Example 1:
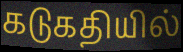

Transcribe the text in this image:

கடுகதியில்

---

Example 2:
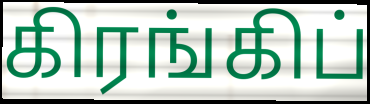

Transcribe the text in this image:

கிரங்கிப்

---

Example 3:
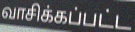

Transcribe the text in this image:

வாசிக்கப்பட்ட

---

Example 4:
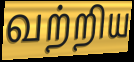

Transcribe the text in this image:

வற்றிய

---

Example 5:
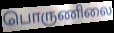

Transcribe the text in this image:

பொருணிலை